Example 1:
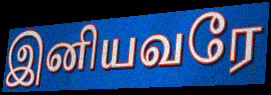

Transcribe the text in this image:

இனியவரே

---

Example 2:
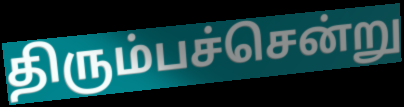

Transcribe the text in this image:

திரும்பச்சென்று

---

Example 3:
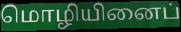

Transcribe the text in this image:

மொழியினைப்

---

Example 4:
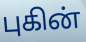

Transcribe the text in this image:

புகின்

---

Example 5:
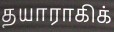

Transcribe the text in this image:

தயாராகிக்